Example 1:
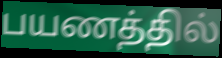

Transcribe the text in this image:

பயணத்தில்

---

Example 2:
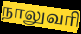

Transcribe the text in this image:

நாலுவரி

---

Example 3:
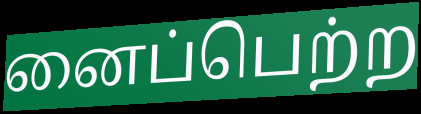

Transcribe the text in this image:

னைப்பெற்ற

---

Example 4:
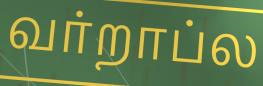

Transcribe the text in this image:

வர்றாப்ல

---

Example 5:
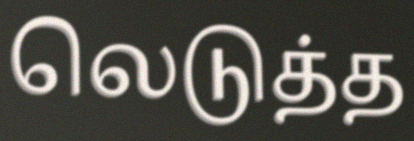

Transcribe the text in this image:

லெடுத்த